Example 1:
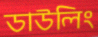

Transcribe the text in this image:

ডাউলিং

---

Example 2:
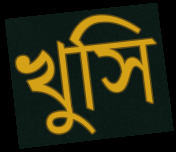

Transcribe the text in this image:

খুসি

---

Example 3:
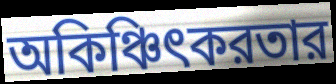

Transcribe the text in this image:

অকিঞ্চিৎকরতার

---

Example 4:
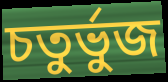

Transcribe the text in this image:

চতুর্ভুজ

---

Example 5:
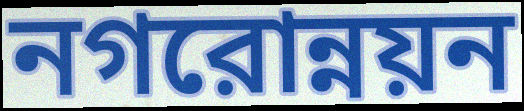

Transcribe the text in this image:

নগরোন্নয়ন